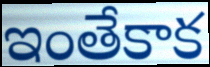
ఇంతేకాక